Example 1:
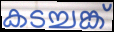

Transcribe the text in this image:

കടച്ചങ്ക്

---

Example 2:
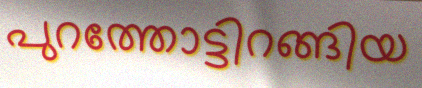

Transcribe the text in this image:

പുറത്തോട്ടിറങ്ങിയ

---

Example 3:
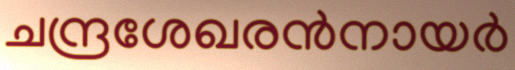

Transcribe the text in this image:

ചന്ദ്രശേഖരൻനായർ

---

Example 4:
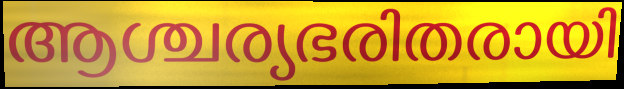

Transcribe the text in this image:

ആശ്ചര്യഭരിതരായി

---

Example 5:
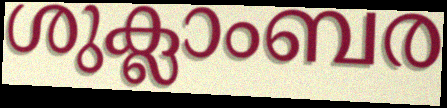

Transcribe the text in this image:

ശുക്ലാംബര